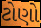
ટોણો